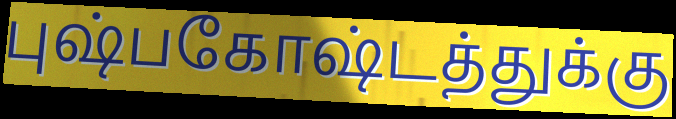
புஷ்பகோஷ்டத்துக்கு